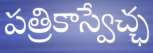
పత్రికాస్వేచ్ఛ